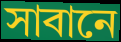
সাবানে